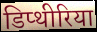
डिप्थीरिया